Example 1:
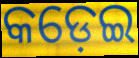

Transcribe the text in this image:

କଡ଼େଇ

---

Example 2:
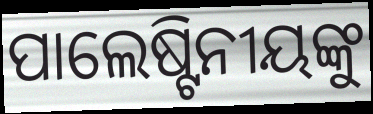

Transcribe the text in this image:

ପାଲେଷ୍ଟିନୀୟଙ୍କୁ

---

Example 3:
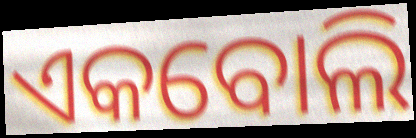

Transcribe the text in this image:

ଏକବୋଲି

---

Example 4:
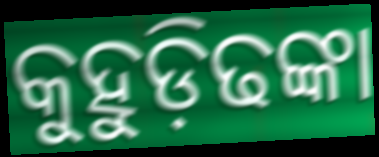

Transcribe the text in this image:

କୁହୁଡ଼ିଢଙ୍କା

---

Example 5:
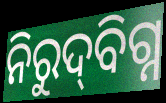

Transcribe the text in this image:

ନିରୁଦ୍‌ବିଗ୍ନ